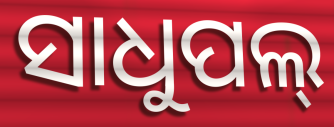
ସାଧୁପଲ୍